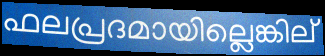
ഫലപ്രദമായില്ലെങ്കില്